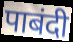
पाबंदी